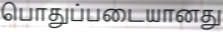
பொதுப்படையானது